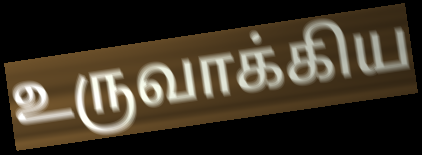
உருவாக்கிய